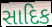
સાદિક